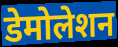
डेमोलेशन